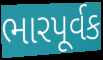
ભારપૂર્વક